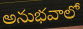
అనుభవాలో